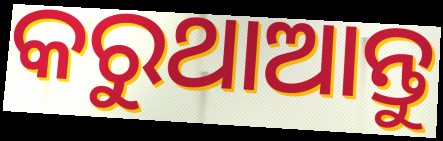
କରୁଥାଆନ୍ତୁ